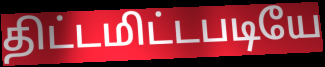
திட்டமிட்டபடியே